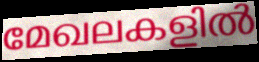
മേഖലകളിൽ